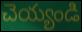
చెయ్యండి